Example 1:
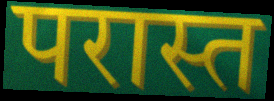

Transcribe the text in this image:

परास्त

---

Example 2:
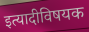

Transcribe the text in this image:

इत्यादीविषयक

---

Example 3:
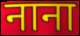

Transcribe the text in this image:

नाना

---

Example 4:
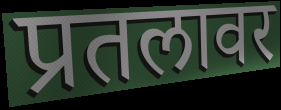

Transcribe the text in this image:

प्रतलावर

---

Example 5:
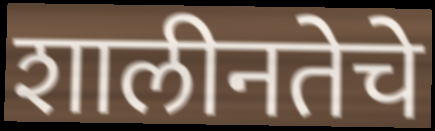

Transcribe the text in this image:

शालीनतेचे